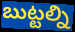
బుట్టల్ని